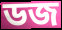
ডজ